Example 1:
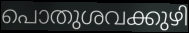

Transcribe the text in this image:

പൊതുശവക്കുഴി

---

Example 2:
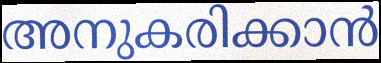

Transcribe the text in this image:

അനുകരിക്കാൻ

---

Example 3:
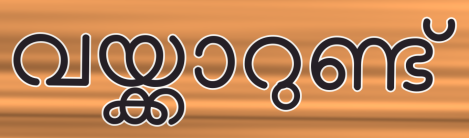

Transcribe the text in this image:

വയ്ക്കാറുണ്ട്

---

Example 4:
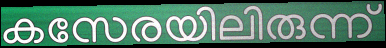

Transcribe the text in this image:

കസേരയിലിരുന്ന്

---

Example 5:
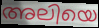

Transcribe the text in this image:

അലിയെ